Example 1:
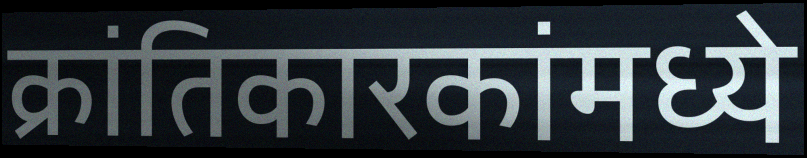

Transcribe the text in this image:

क्रांतिकारकांमध्ये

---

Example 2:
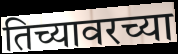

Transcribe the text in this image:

तिच्यावरच्या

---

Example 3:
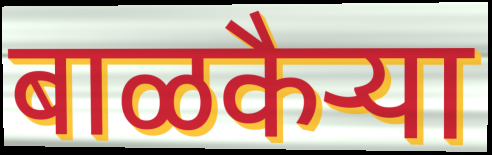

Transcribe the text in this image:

बाळकैऱ्या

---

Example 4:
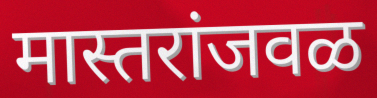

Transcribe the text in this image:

मास्तरांजवळ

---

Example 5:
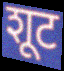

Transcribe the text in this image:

शूट